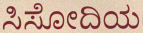
ಸಿಸೋದಿಯ